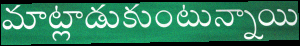
మాట్లాడుకుంటున్నాయి